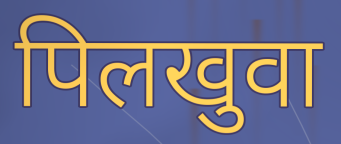
पिलखुवा